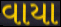
વાયા